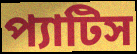
প্যাটিস